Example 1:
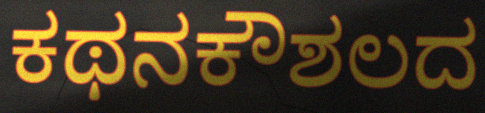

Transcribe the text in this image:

ಕಥನಕೌಶಲದ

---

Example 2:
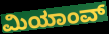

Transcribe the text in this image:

ಮಿಯಾಂವ್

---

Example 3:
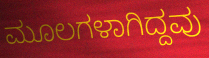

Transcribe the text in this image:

ಮೂಲಗಳಾಗಿದ್ದವು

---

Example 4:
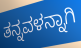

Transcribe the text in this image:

ತನ್ನವಳನ್ನಾಗಿ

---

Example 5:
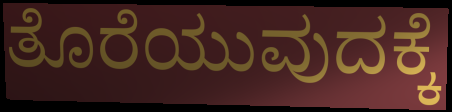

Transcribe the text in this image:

ತೊರೆಯುವುದಕ್ಕೆ